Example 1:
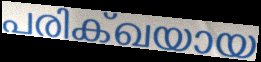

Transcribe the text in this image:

പരിക്ഖയായ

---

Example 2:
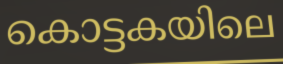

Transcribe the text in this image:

കൊട്ടകയിലെ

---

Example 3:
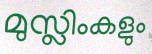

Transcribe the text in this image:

മുസ്ലിംകളും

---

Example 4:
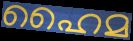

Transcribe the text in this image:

ഹൈമ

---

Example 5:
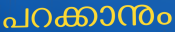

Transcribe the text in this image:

പറക്കാനും